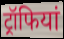
ट्रॉफियां